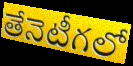
తేనెటీగలో